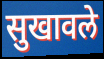
सुखावले